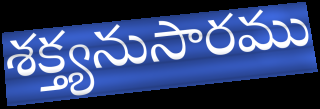
శక్త్యనుసారము